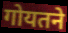
गोयतने